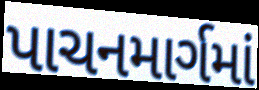
પાચનમાર્ગમાં